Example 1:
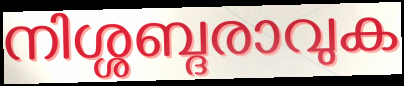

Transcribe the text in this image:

നിശ്ശബ്ദരാവുക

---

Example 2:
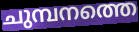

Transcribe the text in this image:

ചുമ്പനത്തെ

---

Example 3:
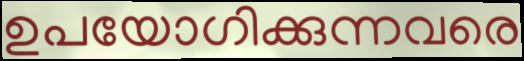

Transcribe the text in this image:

ഉപയോഗിക്കുന്നവരെ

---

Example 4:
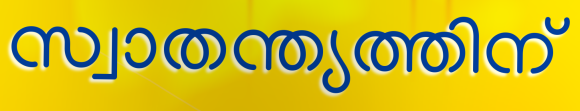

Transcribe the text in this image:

സ്വാതന്ത്യത്തിന്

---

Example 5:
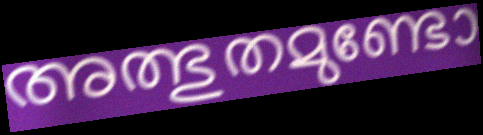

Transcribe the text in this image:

അത്ഭുതമുണ്ടോ